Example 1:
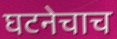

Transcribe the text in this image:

घटनेचाच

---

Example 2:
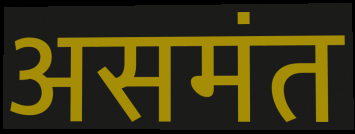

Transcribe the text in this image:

असमंत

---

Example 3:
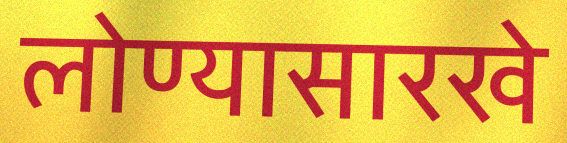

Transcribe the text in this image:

लोण्यासारखे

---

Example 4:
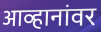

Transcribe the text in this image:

आव्हानांवर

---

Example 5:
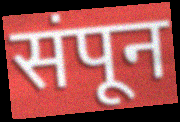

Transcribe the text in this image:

संपून